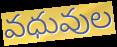
వధువుల